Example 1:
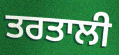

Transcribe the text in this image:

ਤਰਤਾਲੀ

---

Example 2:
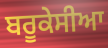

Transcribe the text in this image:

ਬਰੂਕੇਸੀਆ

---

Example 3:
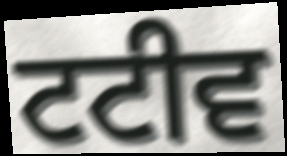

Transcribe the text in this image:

ਟਟੀਵ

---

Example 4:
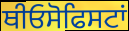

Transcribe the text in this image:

ਥੀਓਸੋਫਿਸਟਾਂ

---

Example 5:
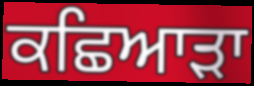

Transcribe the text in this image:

ਕਛਿਆੜਾ